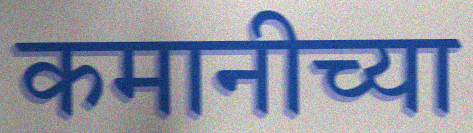
कमानीच्या